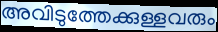
അവിടുത്തേക്കുള്ളവരും